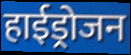
हाईड्रोजन